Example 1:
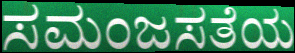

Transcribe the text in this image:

ಸಮಂಜಸತೆಯ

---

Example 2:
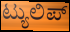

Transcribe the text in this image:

ಟ್ಯುಲಿಪ್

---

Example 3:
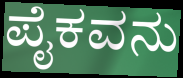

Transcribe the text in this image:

ಪೈಕವನು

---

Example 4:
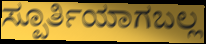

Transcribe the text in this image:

ಸ್ಪೂರ್ತಿಯಾಗಬಲ್ಲ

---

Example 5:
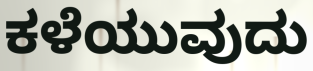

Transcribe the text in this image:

ಕಳೆಯುವುದು